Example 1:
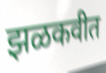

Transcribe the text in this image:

झळकवीत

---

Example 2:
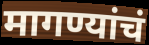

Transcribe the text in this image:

मागण्यांचं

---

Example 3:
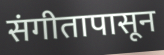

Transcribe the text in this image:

संगीतापासून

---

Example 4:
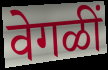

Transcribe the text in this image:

वेगळीं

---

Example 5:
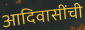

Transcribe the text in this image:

आदिवासींची